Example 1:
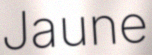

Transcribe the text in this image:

Jaune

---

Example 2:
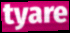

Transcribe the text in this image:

tyare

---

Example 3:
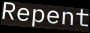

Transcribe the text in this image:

Repent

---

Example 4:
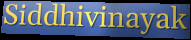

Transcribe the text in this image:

Siddhivinayak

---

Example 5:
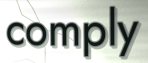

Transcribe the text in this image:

comply